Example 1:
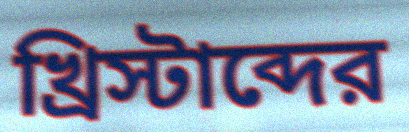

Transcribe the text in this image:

খ্রিস্টাব্দের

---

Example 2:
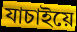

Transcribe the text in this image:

যাচাইয়ে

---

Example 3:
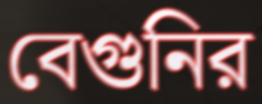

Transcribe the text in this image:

বেগুনির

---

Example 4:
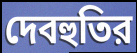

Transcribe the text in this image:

দেবহুতির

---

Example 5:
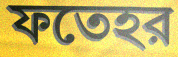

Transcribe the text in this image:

ফতেহর